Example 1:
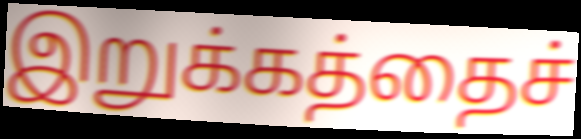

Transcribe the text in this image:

இறுக்கத்தைச்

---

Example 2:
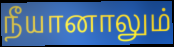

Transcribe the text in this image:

நீயானாலும்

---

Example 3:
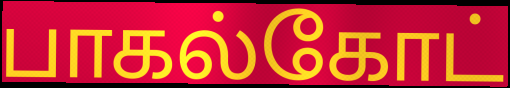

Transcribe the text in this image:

பாகல்கோட்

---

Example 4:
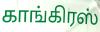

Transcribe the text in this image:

காங்கிரஸ்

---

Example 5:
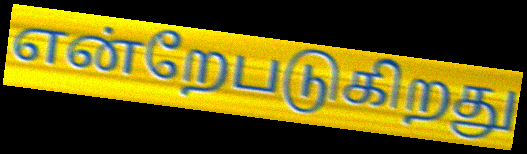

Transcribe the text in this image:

என்றேபடுகிறது